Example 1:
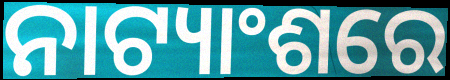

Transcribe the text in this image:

ନାଟ୍ୟାଂଶରେ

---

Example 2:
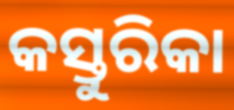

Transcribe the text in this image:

କସ୍ତୁରିକା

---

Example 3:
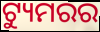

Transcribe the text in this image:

ଟ୍ୟୁମରର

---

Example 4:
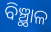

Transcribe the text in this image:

ବିଞ୍ଛାଳ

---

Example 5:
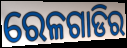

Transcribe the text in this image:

ରେଳଗାଡିର